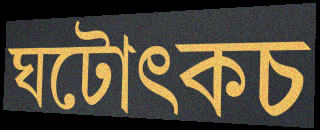
ঘটোৎকচ